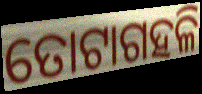
ତୋଟାଗହଳି